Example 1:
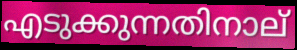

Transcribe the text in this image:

എടുക്കുന്നതിനാല്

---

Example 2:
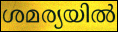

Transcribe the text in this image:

ശമര്യയിൽ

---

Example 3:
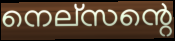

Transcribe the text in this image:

നെല്സന്റെ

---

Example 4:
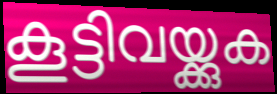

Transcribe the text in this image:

കൂട്ടിവയ്ക്കുക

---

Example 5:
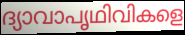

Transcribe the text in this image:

ദ്യാവാപൃഥിവികളെ